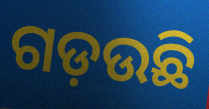
ଗଡ଼ଉଛି